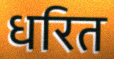
धरित